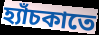
হ্যাঁচকাতে